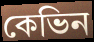
কেভিন